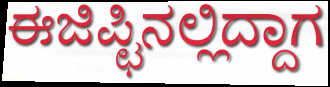
ಈಜಿಪ್ಟಿನಲ್ಲಿದ್ದಾಗ